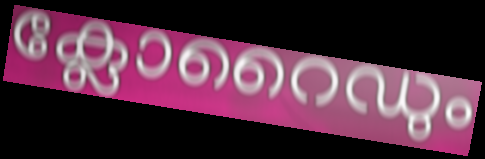
ക്ലോറൈഡും